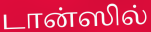
டான்ஸில்